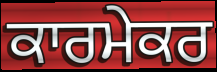
ਕਾਰਮੇਕਰ